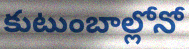
కుటుంబాల్లోనో